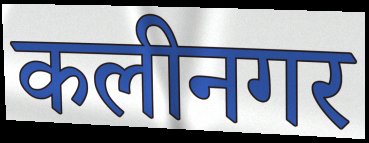
कलीनगर